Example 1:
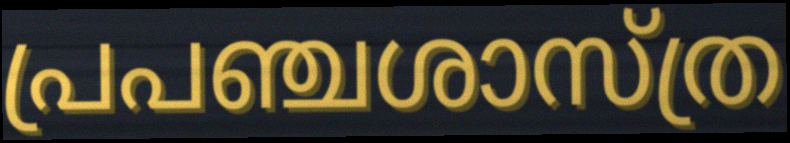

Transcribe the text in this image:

പ്രപഞ്ചശാസ്ത്ര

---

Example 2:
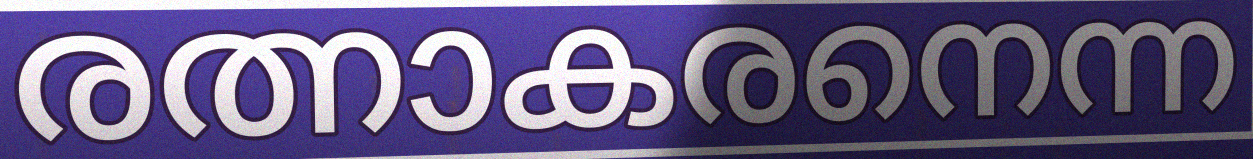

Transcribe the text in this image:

രത്നാകരനെന്ന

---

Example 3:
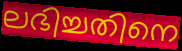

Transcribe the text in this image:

ലഭിച്ചതിനെ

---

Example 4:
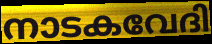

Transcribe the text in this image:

നാടകവേദി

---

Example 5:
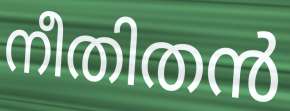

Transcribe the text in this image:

നീതിതൻ